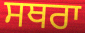
ਸਥਰਾ